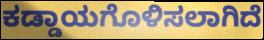
ಕಡ್ಡಾಯಗೊಳಿಸಲಾಗಿದೆ